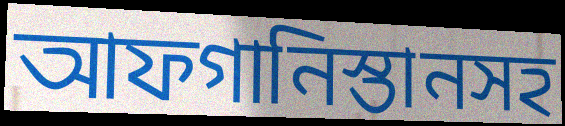
আফগানিস্তানসহ